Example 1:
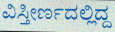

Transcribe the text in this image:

ವಿಸ್ತೀರ್ಣದಲ್ಲಿದ್ದ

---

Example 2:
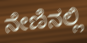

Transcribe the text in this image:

ನೇಣಿನಲ್ಲಿ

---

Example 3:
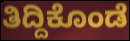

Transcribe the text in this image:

ತಿದ್ದಿಕೊಂಡೆ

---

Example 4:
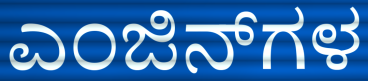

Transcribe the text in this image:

ಎಂಜಿನ್‌ಗಳ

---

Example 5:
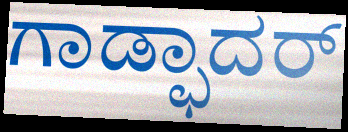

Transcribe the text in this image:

ಗಾಡ್ಫಾದರ್